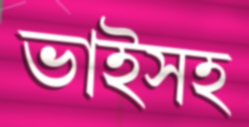
ভাইসহ